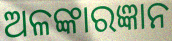
ଅଳଙ୍କାରଜ୍ଞାନ